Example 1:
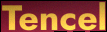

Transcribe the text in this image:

Tencel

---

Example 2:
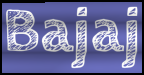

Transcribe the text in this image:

Bajaj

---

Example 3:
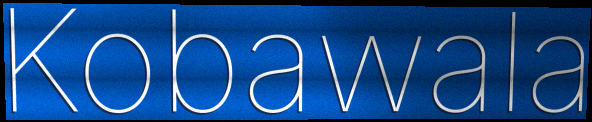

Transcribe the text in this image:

Kobawala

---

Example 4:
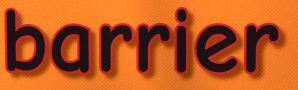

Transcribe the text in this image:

barrier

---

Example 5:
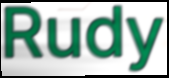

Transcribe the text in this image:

Rudy